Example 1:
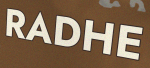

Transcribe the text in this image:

RADHE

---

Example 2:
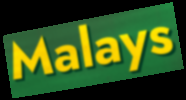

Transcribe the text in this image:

Malays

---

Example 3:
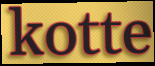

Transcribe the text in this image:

kotte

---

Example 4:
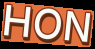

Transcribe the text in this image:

HON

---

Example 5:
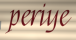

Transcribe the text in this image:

periye